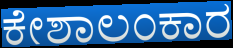
ಕೇಶಾಲಂಕಾರ